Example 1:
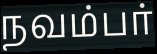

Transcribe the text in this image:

நவம்பர்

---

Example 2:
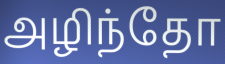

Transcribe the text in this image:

அழிந்தோ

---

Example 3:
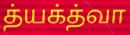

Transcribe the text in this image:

த்யக்த்வா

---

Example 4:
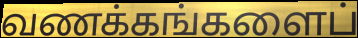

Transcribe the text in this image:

வணக்கங்களைப்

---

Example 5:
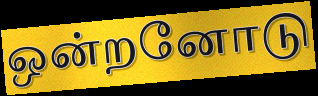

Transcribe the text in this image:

ஒன்றனோடு